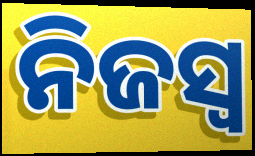
ନିଜସ୍ଵ